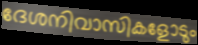
ദേശനിവാസികളോടും